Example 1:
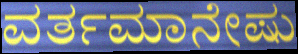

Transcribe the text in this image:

ವರ್ತಮಾನೇಷು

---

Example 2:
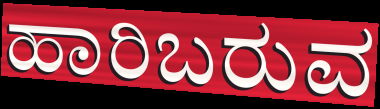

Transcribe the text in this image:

ಹಾರಿಬರುವ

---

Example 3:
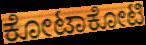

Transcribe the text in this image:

ಕೋಟಾಕೋಟಿ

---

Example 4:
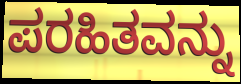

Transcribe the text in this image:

ಪರಹಿತವನ್ನು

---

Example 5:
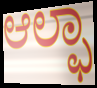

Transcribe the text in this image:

ಆಲ್ಫಾ